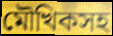
মৌখিকসহ